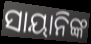
ସାୟାନିଙ୍କ